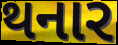
થનાર